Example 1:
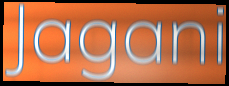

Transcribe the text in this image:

Jagani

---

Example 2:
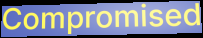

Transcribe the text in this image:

Compromised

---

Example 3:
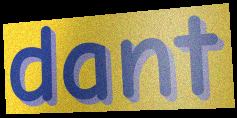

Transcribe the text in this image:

dant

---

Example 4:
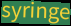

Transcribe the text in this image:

syringe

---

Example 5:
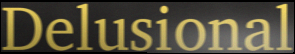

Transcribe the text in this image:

Delusional